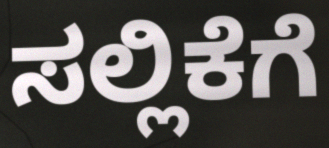
ಸಲ್ಲಿಕೆಗೆ